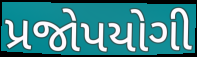
પ્રજોપયોગી